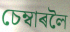
চেম্বাৰলৈ